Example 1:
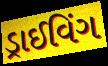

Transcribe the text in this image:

ડ્રાઈવિંગ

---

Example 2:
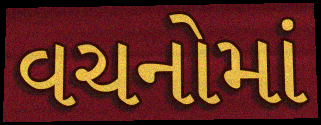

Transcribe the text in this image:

વચનોમાં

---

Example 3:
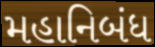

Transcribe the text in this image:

મહાનિબંધ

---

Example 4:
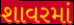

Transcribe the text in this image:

શાવરમાં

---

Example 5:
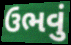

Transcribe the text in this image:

ઉભવું